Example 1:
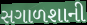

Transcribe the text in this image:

સગાળશાની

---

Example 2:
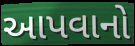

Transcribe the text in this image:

આપવાનો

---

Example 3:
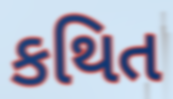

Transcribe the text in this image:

કથિત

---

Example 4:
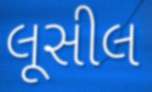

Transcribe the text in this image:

લૂસીલ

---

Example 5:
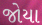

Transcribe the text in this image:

જોયા